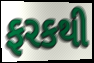
ફરકથી